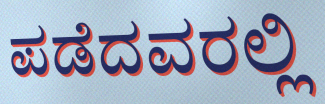
ಪಡೆದವರಲ್ಲಿ